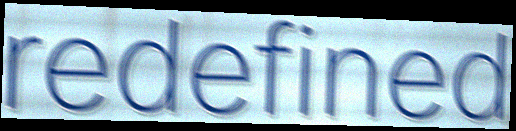
redefined